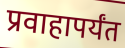
प्रवाहापर्यंत